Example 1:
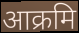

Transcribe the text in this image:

आक्रमि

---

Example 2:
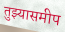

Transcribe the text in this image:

तुझ्यासमीप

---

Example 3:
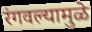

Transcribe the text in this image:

रंगवल्यामुळे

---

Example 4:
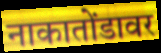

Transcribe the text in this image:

नाकातोंडावर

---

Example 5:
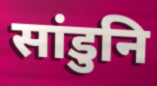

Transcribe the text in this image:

सांडुनि